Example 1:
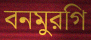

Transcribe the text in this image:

বনমুরগি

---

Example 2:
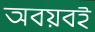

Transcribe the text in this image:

অবয়বই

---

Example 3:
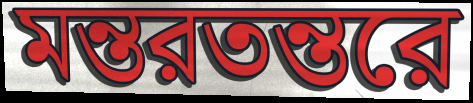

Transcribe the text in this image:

মন্তরতন্তরে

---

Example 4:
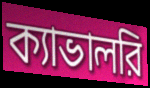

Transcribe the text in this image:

ক্যাভালরি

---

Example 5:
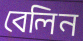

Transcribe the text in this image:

বেলিন